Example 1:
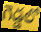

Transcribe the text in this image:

గెడ్డలో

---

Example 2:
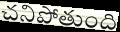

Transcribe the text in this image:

చనిపోతుంది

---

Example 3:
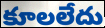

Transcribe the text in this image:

కూలలేదు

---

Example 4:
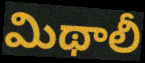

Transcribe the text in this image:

మిథాలీ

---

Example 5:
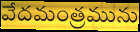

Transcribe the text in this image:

వేదమంత్రమును